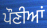
ਪੌਣੀਆਂ